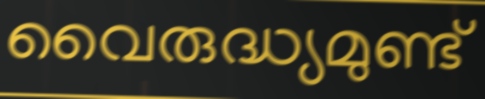
വൈരുദ്ധ്യമുണ്ട്